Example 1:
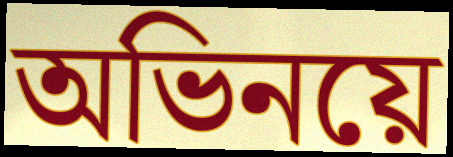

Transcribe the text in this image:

অভিনয়ে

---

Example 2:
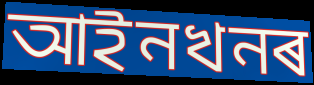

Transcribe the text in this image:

আইনখনৰ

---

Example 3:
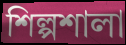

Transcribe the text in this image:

শিল্পশালা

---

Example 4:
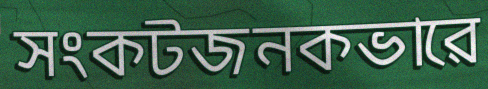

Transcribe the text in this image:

সংকটজনকভাৱে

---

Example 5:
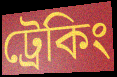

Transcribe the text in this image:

ট্ৰেকিং